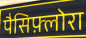
पैसिफ़्लोरा